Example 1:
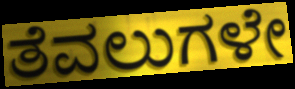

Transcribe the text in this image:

ತೆವಲುಗಳೇ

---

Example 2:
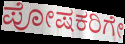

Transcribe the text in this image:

ಪೋಷಕರಿಗೇ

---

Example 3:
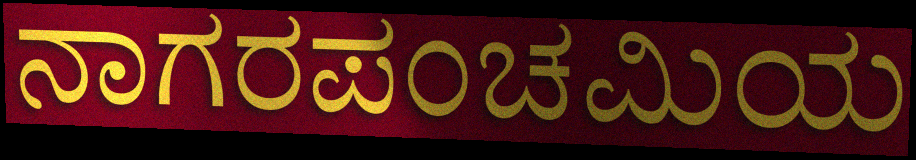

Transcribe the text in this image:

ನಾಗರಪಂಚಮಿಯ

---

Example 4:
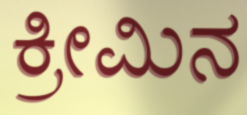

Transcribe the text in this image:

ಕ್ರೀಮಿನ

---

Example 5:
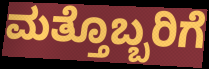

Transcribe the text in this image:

ಮತ್ತೊಬ್ಬರಿಗೆ